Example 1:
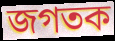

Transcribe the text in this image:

জগতক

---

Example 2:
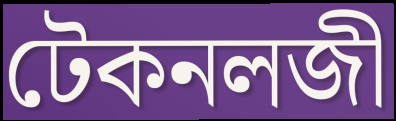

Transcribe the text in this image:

টেকনলজী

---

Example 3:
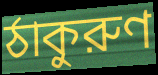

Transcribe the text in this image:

ঠাকুৰুণ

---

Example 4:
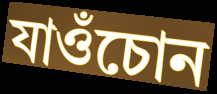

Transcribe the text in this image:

যাওঁচোন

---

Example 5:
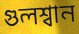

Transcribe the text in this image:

গুলশ্বান